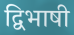
द्विभाषी